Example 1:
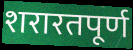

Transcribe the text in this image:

शरारतपूर्ण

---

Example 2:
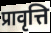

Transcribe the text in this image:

प्रावृत्ति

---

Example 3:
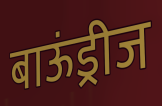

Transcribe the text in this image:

बाऊंड्रीज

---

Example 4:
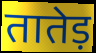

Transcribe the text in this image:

तातेड़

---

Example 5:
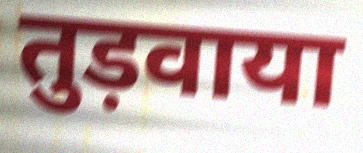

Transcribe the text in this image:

तुड़वाया